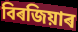
বিৰজিয়াৰ